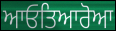
ਆਓਤਿਆਰੋਆ